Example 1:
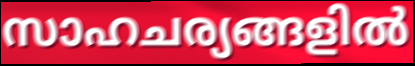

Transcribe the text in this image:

സാഹചര്യങ്ങളിൽ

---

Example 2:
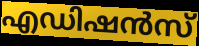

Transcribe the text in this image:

എഡിഷൻസ്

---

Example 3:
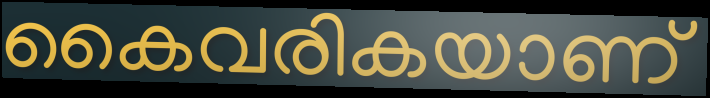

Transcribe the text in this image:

കൈവരികയാണ്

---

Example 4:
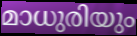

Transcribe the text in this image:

മാധുരിയും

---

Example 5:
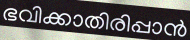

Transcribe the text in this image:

ഭവിക്കാതിരിപ്പാൻ